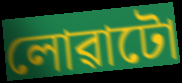
লোৱাটো